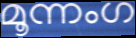
മൂന്നംഗ